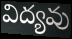
విద్యవు